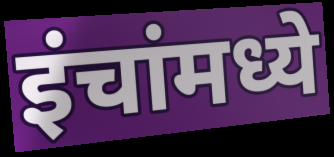
इंचांमध्ये